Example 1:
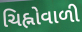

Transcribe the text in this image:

ચિહ્નોવાળી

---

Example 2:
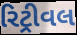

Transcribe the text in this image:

રિટ્રીવલ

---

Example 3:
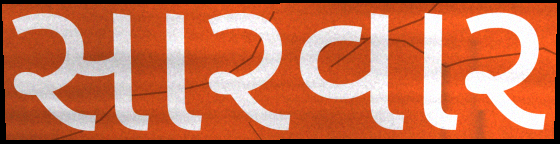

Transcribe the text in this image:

સારવાર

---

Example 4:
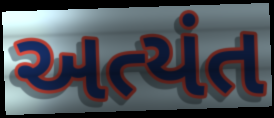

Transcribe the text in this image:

અત્યંત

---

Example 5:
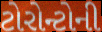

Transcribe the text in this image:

ટોરોન્ટોની